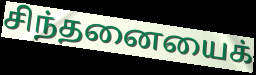
சிந்தனையைக்